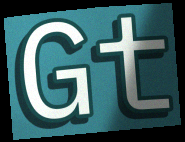
Gt